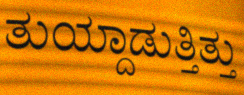
ತುಯ್ದಾಡುತ್ತಿತ್ತು